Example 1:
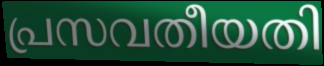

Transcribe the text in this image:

പ്രസവതീയതി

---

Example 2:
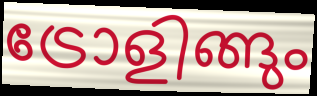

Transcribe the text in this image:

ട്രോളിങ്ങും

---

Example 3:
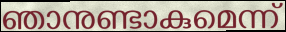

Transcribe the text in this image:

ഞാനുണ്ടാകുമെന്ന്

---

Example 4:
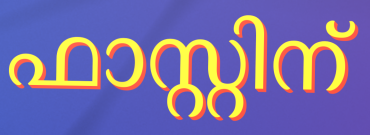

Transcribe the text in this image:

ഫാസ്റ്റിന്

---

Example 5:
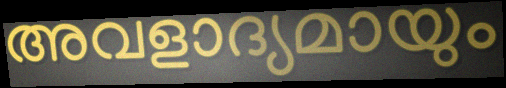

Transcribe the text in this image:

അവളാദ്യമായും